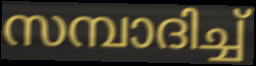
സമ്പാദിച്ച്